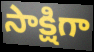
సాక్షిగా